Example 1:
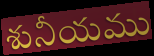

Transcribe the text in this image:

శునీయము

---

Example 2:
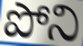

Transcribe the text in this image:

పోని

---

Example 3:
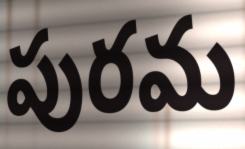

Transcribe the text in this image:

పురమ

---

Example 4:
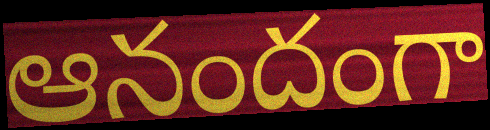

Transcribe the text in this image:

ఆనందంగా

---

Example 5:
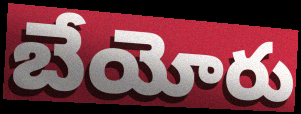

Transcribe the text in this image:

బేయోరు